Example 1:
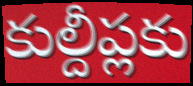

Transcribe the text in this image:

కుల్దీప్లకు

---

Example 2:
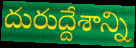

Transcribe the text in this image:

దురుద్దేశాన్ని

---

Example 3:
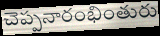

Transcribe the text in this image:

చెప్పనారంభింతురు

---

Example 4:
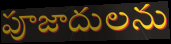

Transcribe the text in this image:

పూజాదులను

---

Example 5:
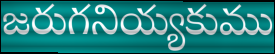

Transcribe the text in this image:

జరుగనియ్యకుము